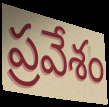
ప్రవేశం